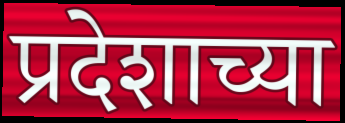
प्रदेशाच्या